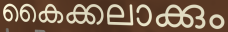
കൈക്കലാക്കും